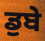
ਡੁਬੇ